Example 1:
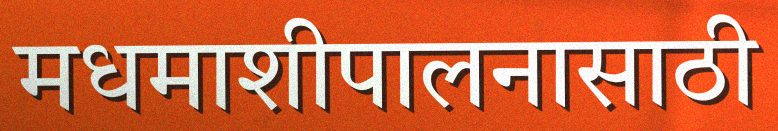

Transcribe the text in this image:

मधमाशीपालनासाठी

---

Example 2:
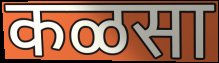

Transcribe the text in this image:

कळसा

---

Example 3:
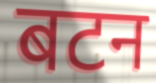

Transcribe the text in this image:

बटन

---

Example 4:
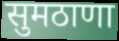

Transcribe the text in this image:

सुमठाणा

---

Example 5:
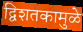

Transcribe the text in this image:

द्विशतकामुळे